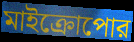
মাইক্রোপোর